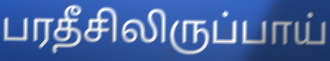
பரதீசிலிருப்பாய்